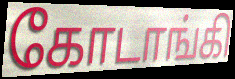
கோடாங்கி